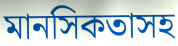
মানসিকতাসহ